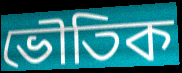
ভৌতিক